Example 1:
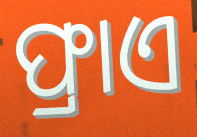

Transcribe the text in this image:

ଫ୍ରାଏ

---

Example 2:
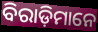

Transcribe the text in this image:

ବିରାଡ଼ିମାନେ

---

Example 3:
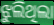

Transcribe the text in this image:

ଝୁଲିଥିଲା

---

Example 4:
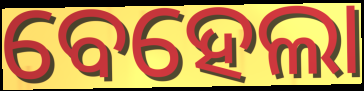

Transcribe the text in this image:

ବେହେଲା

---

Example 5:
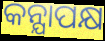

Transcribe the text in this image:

କନ୍ଯାପକ୍ଷ